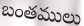
బంతములు